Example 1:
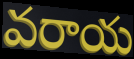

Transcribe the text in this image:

వరాయ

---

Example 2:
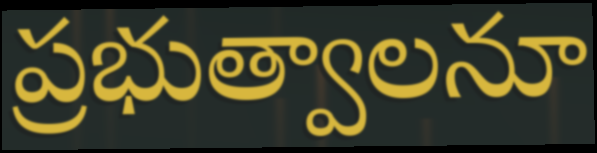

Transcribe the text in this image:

ప్రభుత్వాలనూ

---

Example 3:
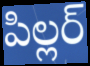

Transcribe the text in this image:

పిల్లర్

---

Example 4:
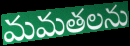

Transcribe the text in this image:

మమతలను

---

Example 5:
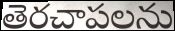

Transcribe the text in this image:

తెరచాపలను